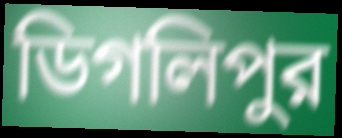
ডিগলিপুর